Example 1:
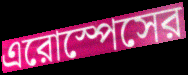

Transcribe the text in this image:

এরোস্পেসের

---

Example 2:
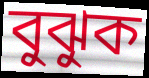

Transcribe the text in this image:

বুঝুক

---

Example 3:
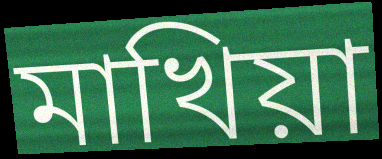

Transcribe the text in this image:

মাখিয়া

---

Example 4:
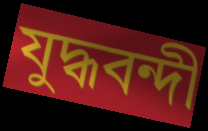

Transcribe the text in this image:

যুদ্ধবন্দী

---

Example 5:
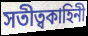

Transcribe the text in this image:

সতীত্বকাহিনী